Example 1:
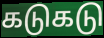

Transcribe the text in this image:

கடுகடு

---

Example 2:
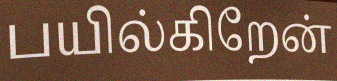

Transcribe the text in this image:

பயில்கிறேன்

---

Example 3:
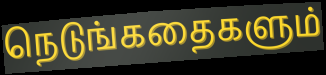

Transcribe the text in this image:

நெடுங்கதைகளும்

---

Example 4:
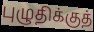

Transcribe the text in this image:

புழுதிக்குத்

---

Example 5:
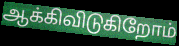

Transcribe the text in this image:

ஆக்கிவிடுகிறோம்